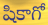
షికాగో